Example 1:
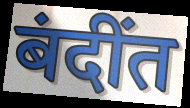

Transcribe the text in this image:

बंदींत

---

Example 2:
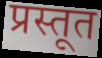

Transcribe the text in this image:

प्रस्तूत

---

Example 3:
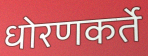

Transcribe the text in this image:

धोरणकर्ते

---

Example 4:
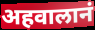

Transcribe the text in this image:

अहवालानं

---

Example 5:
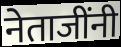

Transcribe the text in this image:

नेताजींनी